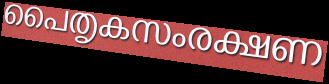
പൈതൃകസംരക്ഷണ